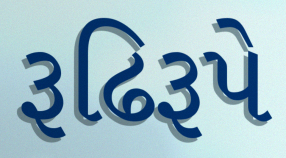
રૂઢિરૂપે